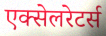
एक्सेलरेटर्स